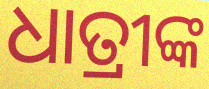
ଧାତ୍ରୀଙ୍କ